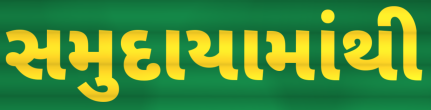
સમુદાયામાંથી